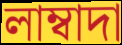
লাম্বাদা